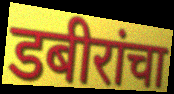
डबीरांचा